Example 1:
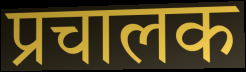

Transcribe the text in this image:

प्रचालक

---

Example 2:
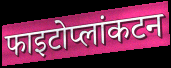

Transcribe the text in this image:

फाइटोप्लांकटन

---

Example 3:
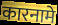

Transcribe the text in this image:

कारनामे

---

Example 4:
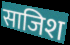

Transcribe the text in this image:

साजिश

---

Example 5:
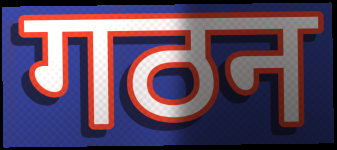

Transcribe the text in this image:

गठन